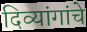
दिव्यांगांचे